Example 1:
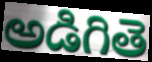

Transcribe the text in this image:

అడిగితె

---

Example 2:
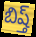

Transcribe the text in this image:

బిష్త్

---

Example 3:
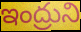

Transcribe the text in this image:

ఇంద్రుని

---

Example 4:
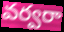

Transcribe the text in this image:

వర్వరా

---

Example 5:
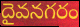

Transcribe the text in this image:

దైవనగరం